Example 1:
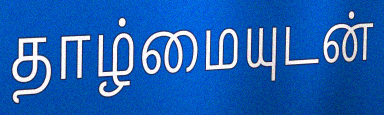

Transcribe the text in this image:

தாழ்மையுடன்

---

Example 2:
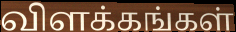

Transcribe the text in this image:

விளக்கங்கள்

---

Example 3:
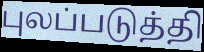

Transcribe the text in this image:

புலப்படுத்தி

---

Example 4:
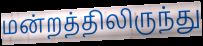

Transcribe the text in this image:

மன்றத்திலிருந்து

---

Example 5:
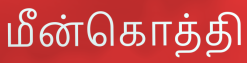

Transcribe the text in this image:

மீன்கொத்தி